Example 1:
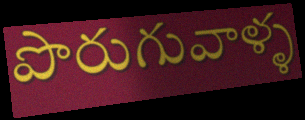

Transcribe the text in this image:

పొరుగువాళ్ళ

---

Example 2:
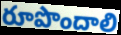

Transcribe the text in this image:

రూపొందాలి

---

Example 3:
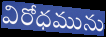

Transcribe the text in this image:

విరోధమును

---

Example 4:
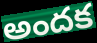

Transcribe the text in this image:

అందక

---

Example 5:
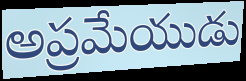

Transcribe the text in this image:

అప్రమేయుడు